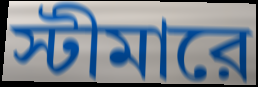
স্টীমারে